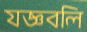
যজ্ঞবলি